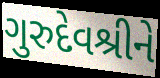
ગુરુદેવશ્રીને